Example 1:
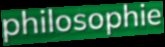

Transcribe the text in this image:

philosophie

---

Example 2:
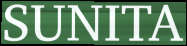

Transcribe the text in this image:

SUNITA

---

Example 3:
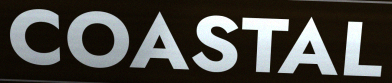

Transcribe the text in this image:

COASTAL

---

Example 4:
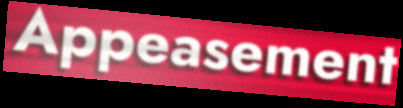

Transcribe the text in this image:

Appeasement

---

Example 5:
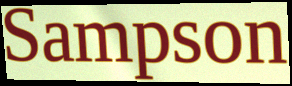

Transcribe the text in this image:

Sampson